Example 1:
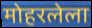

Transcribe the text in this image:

मोहरलेला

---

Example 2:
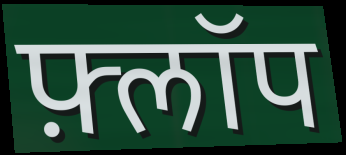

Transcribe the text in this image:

फ़्लॉप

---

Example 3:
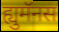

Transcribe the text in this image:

ह्युमॅनस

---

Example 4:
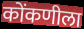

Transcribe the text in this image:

कोंकणीला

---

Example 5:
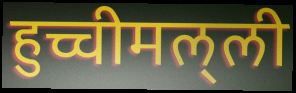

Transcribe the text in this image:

हुच्चीमल्ली